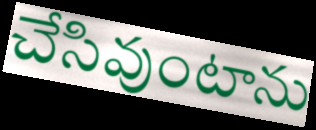
చేసివుంటాను